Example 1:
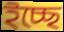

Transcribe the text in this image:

ইচ্ছে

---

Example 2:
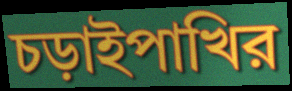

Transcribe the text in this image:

চড়াইপাখির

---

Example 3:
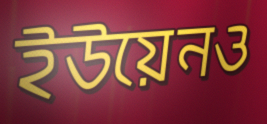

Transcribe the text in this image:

ইউয়েনও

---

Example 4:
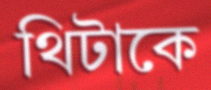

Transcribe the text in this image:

থিটাকে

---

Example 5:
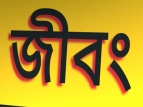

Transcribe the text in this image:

জীবং